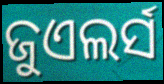
ଜୁଏଲର୍ସ